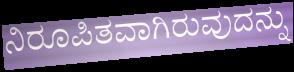
ನಿರೂಪಿತವಾಗಿರುವುದನ್ನು